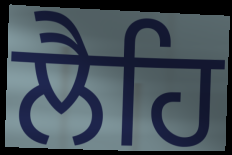
ਲੈਹਿ